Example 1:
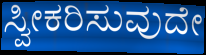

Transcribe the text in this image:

ಸ್ವೀಕರಿಸುವುದೇ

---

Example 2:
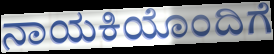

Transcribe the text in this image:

ನಾಯಕಿಯೊಂದಿಗೆ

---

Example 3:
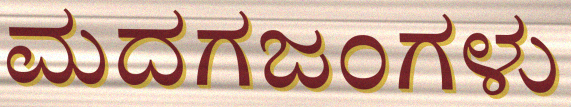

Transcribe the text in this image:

ಮದಗಜಂಗಳು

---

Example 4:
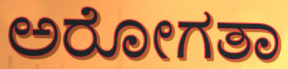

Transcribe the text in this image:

ಅರೋಗತಾ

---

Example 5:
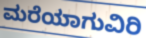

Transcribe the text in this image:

ಮರೆಯಾಗುವಿರಿ